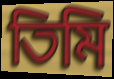
তিমি